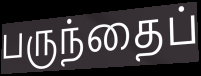
பருந்தைப்